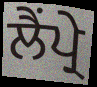
ਲੈਂਪ੍ਰੇ